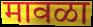
मावळा